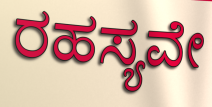
ರಹಸ್ಯವೇ